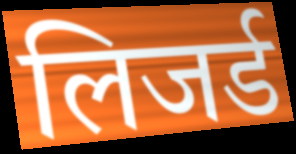
लिजर्ड